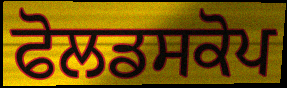
ਫੋਲਡਸਕੋਪ